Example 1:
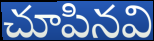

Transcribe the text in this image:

చూపినవి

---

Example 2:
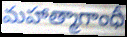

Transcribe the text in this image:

మహాత్మాగాంధీ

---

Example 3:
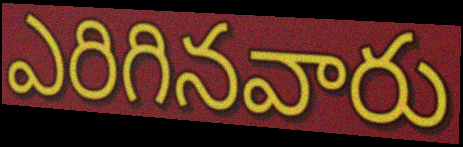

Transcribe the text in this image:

ఎరిగినవారు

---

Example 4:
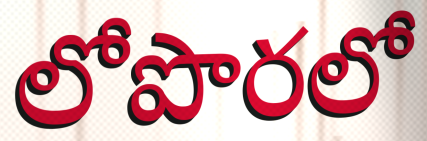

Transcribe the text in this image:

లోపొరలో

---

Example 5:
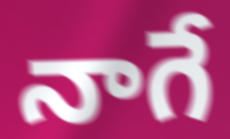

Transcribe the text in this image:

నాగే